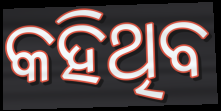
କହିଥିବ